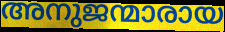
അനുജന്മാരായ